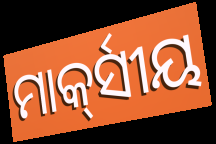
ମାର୍କ୍‍ସୀୟ